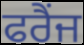
ਫਰੈਂਜ